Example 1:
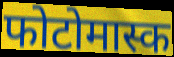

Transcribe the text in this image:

फोटोमास्क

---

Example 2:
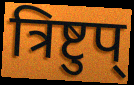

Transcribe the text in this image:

त्रिष्टुप्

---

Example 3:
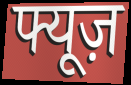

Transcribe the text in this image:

फ्यूज़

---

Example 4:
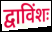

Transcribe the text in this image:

द्वाविंशः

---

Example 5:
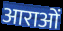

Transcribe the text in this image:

आराओं